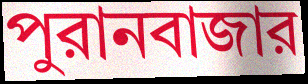
পুরানবাজার